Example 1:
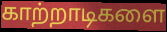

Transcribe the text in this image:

காற்றாடிகளை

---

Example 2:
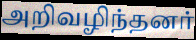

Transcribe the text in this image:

அறிவழிந்தனர்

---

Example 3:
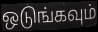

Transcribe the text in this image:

ஒடுங்கவும்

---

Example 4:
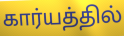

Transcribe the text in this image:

கார்யத்தில்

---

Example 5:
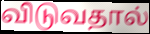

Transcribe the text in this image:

விடுவதால்